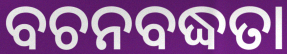
ବଚନବଦ୍ଧତା